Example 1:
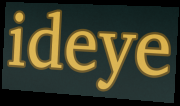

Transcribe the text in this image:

ideye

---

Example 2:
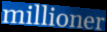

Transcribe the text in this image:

millioner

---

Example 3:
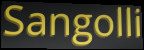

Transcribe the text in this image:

Sangolli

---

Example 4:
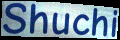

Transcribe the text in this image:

Shuchi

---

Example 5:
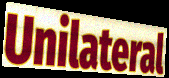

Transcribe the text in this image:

Unilateral